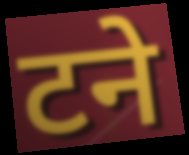
टने